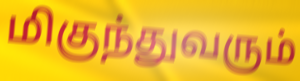
மிகுந்துவரும்